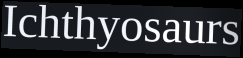
Ichthyosaurs